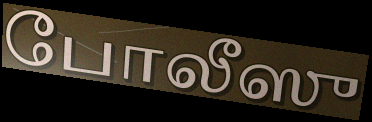
போலீஸு